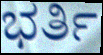
ಭರ್ತಿ